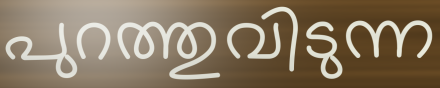
പുറത്തുവിടുന്ന